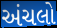
અંચલો